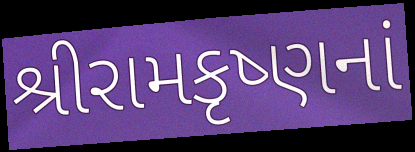
શ્રીરામકૃષ્ણનાં